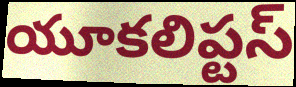
యూకలిప్టస్